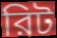
রিট